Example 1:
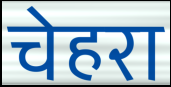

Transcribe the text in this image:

चेहरा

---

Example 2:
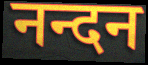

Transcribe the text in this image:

नन्दन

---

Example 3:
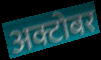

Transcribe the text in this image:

अक्टोबर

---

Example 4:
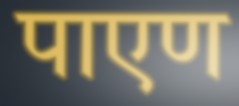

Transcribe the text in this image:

पाएण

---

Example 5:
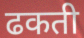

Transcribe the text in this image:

ढकती